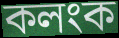
কলংক